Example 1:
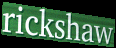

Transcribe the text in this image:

rickshaw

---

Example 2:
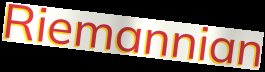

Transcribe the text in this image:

Riemannian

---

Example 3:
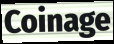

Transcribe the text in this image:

Coinage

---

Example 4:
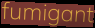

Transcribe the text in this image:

fumigant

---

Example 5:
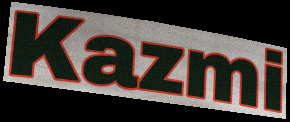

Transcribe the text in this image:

Kazmi